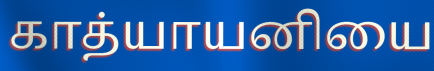
காத்யாயனியை